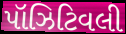
પૉઝિટિવલી